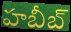
హబీబ్